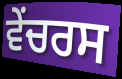
ਵੇਂਚਰਸ